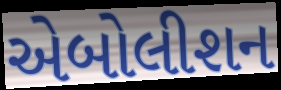
એબોલીશન